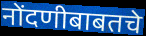
नोंदणीबाबतचे